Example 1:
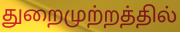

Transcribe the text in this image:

துறைமுற்றத்தில்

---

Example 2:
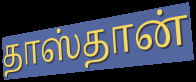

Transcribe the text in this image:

தாஸ்தான்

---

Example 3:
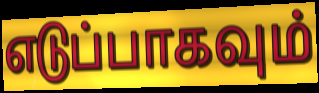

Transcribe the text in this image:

எடுப்பாகவும்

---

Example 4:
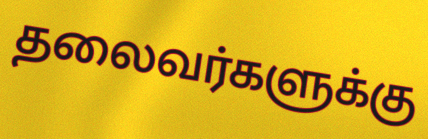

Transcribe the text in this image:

தலைவர்களுக்கு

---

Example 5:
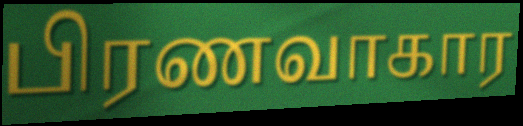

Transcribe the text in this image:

பிரணவாகார